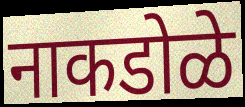
नाकडोळे